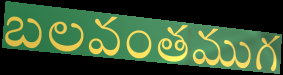
బలవంతముగ